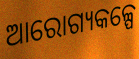
ଆରୋଗ୍ୟକଳ୍ପେ